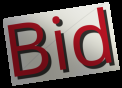
Bid